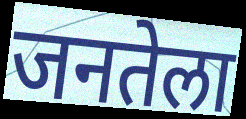
जनतेला